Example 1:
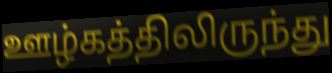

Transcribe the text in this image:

ஊழ்கத்திலிருந்து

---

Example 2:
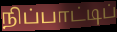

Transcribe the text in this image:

நிப்பாட்டிப்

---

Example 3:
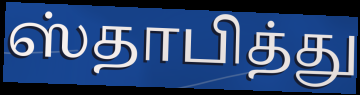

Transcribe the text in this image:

ஸ்தாபித்து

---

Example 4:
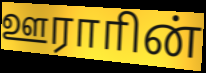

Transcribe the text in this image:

ஊராரின்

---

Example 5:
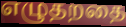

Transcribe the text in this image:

எழுதறதை